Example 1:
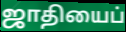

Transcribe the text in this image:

ஜாதியைப்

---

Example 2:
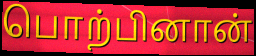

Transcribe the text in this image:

பொற்பினான்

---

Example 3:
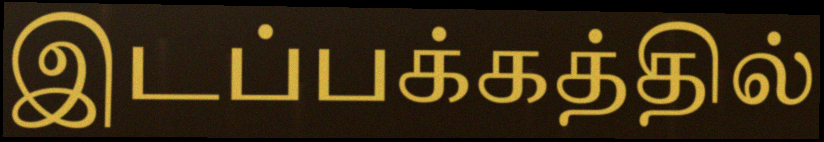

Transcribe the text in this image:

இடப்பக்கத்தில்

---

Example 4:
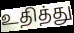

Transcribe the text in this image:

உதித்து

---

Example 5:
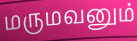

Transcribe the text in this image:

மருமவனும்